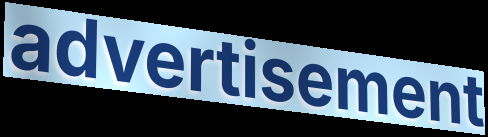
advertisement